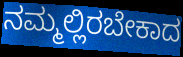
ನಮ್ಮಲ್ಲಿರಬೇಕಾದ